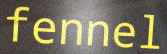
fennel